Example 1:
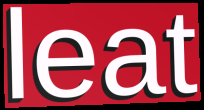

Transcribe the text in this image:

leat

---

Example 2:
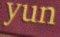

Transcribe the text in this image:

yun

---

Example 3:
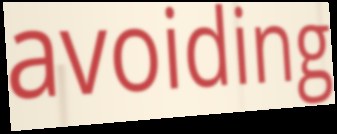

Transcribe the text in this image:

avoiding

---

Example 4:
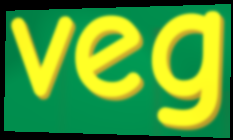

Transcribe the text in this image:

veg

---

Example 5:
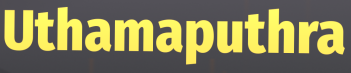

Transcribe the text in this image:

Uthamaputhra